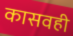
कासवही